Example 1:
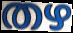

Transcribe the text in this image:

തഴ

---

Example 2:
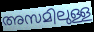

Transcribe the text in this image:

അസമിലുള്ള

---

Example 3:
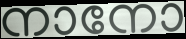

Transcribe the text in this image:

നാനോ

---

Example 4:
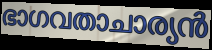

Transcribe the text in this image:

ഭാഗവതാചാര്യൻ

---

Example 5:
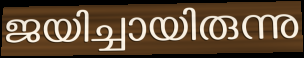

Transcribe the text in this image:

ജയിച്ചായിരുന്നു